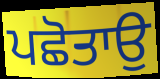
ਪਛੋਤਾਉ